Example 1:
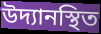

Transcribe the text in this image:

উদ্যানস্থিত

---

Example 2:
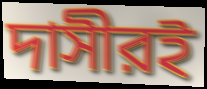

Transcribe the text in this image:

দাসীরই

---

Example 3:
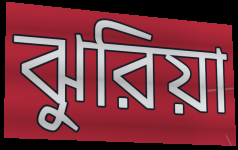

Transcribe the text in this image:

ঝুরিয়া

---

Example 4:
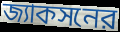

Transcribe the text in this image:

জ্যাকসনের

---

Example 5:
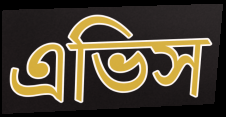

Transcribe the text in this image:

এভিস